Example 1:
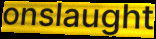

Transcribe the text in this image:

onslaught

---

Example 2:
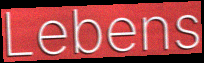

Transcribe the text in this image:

Lebens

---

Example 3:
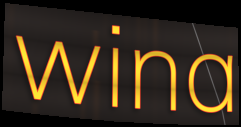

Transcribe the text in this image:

wina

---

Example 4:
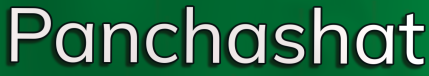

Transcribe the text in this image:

Panchashat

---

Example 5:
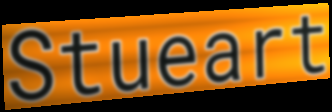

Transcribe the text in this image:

Stueart